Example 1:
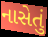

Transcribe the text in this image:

નાસેતું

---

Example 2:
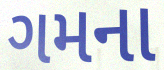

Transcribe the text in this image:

ગમના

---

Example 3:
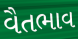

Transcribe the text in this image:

વૈતભાવ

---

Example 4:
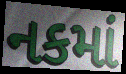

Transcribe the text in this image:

નકમાં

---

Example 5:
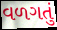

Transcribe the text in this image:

વળગતું